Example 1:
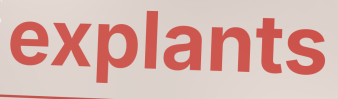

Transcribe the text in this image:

explants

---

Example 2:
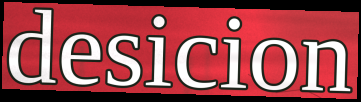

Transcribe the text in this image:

desicion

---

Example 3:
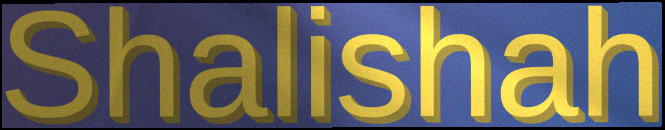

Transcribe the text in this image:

Shalishah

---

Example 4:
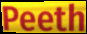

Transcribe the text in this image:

Peeth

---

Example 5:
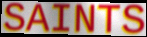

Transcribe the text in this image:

SAINTS